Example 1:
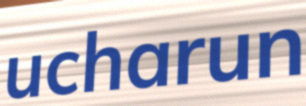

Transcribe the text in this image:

ucharun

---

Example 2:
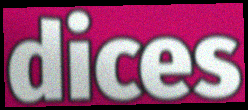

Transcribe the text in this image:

dices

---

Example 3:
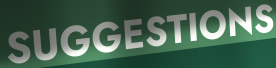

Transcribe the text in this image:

SUGGESTIONS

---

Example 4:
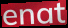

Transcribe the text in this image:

enat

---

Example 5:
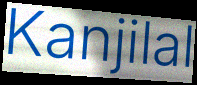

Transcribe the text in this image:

Kanjilal